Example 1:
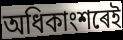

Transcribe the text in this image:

অধিকাংশৰেই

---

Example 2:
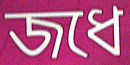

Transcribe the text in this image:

জধে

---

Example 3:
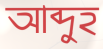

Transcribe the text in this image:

আব্দুহ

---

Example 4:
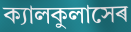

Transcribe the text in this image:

ক্যালকুলাসেৰ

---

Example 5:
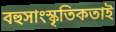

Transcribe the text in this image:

বহুসাংস্কৃতিকতাই